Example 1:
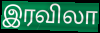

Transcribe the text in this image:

இரவிலா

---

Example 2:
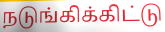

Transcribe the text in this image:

நடுங்கிக்கிட்டு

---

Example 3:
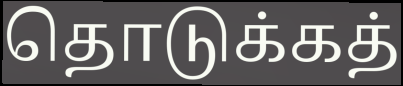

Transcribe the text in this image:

தொடுக்கத்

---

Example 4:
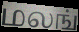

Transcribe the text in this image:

மலங்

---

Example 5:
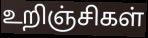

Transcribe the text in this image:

உறிஞ்சிகள்